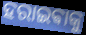
ହରାଇଵାକୁ